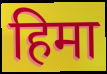
हिमा